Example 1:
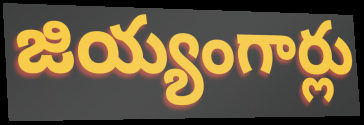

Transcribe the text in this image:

జియ్యంగార్లు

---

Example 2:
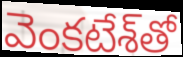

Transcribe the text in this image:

వెంకటేశ్‌తో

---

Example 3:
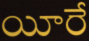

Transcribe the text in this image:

యీరే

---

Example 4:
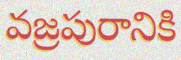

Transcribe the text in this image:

వజ్రపురానికి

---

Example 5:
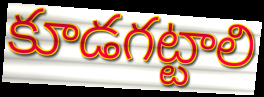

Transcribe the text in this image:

కూడగట్టాలి